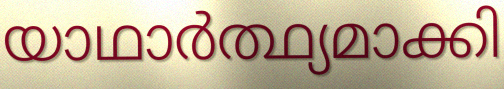
യാഥാർത്ഥ്യമാക്കി